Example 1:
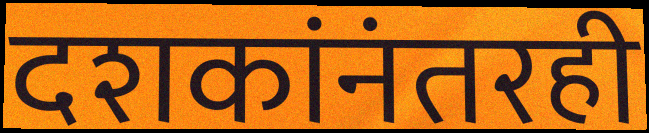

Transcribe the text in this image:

दशकांनंतरही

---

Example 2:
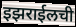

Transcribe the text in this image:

इझराईलची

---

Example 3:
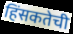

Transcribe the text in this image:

हिंसकतेची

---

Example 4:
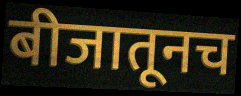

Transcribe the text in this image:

बीजातूनच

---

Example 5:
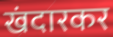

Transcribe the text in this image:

खंदारकर